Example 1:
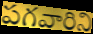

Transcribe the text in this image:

పగవారిని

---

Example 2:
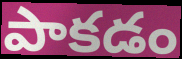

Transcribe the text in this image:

పాకడం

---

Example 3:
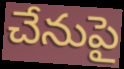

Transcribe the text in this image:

చేనుపై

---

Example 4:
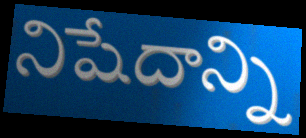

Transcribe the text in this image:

నిషేదాన్ని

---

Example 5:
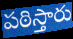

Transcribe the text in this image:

పఠిస్తారు